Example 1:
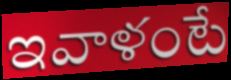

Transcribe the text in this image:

ఇవాళంటే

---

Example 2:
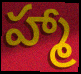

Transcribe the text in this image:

హ్మా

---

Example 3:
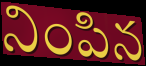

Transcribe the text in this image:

నింపిన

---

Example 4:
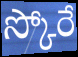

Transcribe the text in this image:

స్కోరే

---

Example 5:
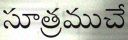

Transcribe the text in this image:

సూత్రముచే